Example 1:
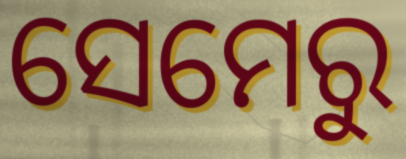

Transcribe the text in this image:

ସେମେରୁ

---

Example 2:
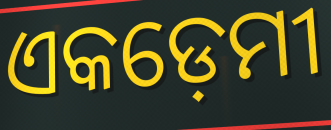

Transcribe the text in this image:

ଏକଡ଼େମୀ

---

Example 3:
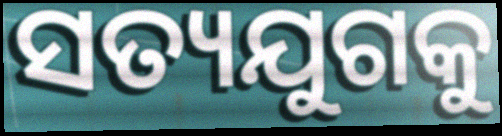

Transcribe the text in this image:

ସତ୍ୟଯୁଗକୁ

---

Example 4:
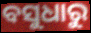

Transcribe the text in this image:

ବସୁଧାରୁ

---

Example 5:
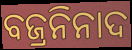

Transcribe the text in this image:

ବଜ୍ରନିନାଦ